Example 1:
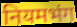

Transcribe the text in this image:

नियमभंग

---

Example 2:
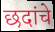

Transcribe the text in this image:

छदांचे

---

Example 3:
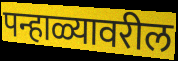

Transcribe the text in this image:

पन्हाळ्यावरील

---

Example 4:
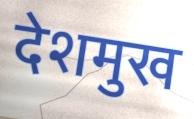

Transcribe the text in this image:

देशमुख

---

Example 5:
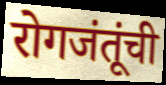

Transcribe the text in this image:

रोगजंतूंची